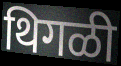
थिगळी